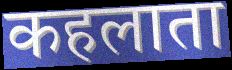
कहलाता